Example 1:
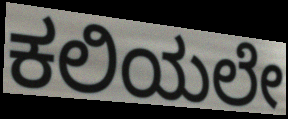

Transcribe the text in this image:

ಕಲಿಯಲೇ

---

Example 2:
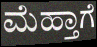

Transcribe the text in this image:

ಮೆಹ್ತಾಗೆ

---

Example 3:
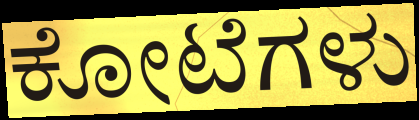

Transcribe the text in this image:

ಕೋಟೆಗಳು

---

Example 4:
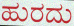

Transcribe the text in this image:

ಹುರದು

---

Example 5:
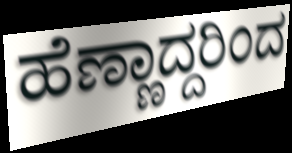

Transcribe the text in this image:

ಹೆಣ್ಣಾದ್ದರಿಂದ